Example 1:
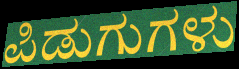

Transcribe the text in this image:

ಪಿಡುಗುಗಳು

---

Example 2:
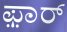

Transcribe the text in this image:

ಫ಼ಾರ್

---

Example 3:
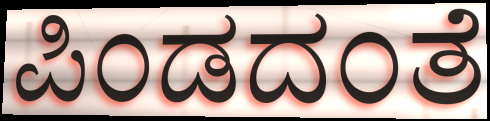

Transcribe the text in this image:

ಪಿಂಡದಂತೆ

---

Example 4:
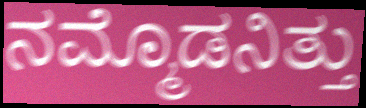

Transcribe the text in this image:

ನಮ್ಮೊಡನಿತ್ತು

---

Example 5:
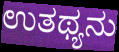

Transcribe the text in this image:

ಉತಥ್ಯನು